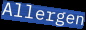
Allergen